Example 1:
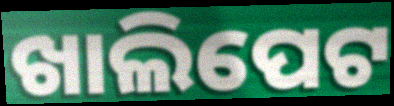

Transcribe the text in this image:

ଖାଲିପେଟ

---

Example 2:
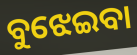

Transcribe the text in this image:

ବୁଝେଇବା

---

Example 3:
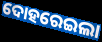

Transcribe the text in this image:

ଦୋହରେଇଲା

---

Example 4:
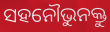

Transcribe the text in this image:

ସହନୌଭୁନକ୍ତୁ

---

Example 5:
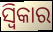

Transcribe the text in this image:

ସ୍ୱିକାର